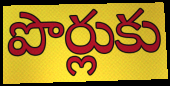
పొర్లుకు